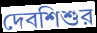
দেবশিশুর